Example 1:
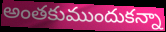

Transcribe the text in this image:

అంతకుముందుకన్నా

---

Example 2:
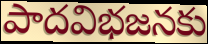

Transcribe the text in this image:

పాదవిభజనకు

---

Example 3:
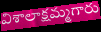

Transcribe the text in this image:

విశాలాక్షమ్మగారు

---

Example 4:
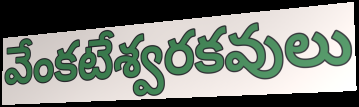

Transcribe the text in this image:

వేంకటేశ్వరకవులు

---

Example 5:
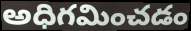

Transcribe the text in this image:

అధిగమించడం